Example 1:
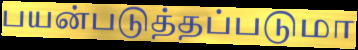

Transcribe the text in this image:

பயன்படுத்தப்படுமா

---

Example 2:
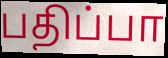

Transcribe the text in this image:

பதிப்பா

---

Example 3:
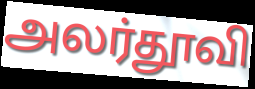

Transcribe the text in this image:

அலர்தூவி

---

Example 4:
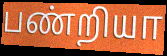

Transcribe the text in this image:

பண்றியா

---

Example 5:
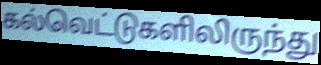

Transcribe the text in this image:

கல்வெட்டுகளிலிருந்து